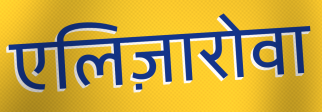
एलिज़ारोवा